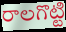
రాలగొట్టి